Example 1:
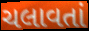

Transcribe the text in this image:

ચલાવતાં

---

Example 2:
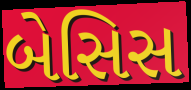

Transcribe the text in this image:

બેસિસ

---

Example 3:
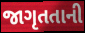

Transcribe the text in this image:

જાગૃતતાની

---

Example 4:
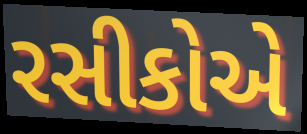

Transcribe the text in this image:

રસીકોએ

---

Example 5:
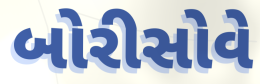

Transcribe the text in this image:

બોરીસોવે